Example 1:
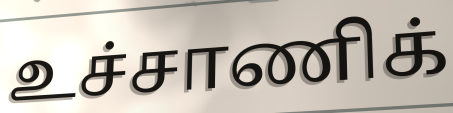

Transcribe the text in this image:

உச்சாணிக்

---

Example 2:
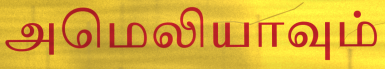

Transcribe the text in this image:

அமெலியாவும்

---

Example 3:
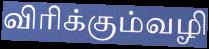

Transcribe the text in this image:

விரிக்கும்வழி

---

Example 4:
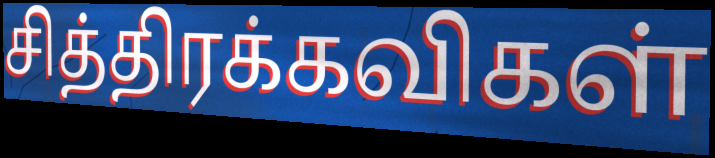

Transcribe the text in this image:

சித்திரக்கவிகள்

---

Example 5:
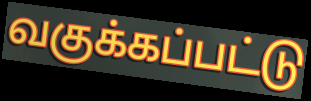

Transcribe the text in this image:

வகுக்கப்பட்டு